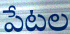
పేటల